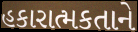
હકારાત્મકતાને